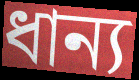
ধান্য